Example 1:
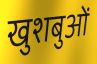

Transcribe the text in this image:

खुशबुओं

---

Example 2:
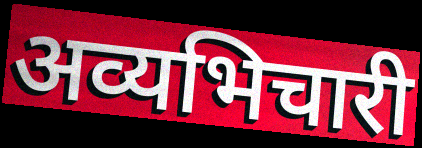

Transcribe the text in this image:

अव्यभिचारी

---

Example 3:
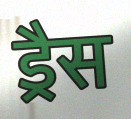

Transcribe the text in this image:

ड्रैस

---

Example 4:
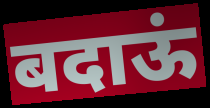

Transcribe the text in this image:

बदाऊं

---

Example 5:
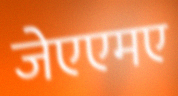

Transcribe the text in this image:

जेएएमए